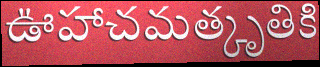
ఊహాచమత్కృతికి